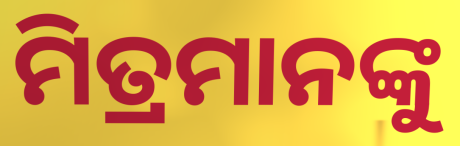
ମିତ୍ରମାନଙ୍କୁ